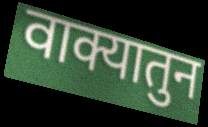
वाक्यातुन